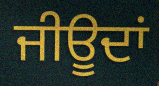
ਜੀਊਦਾਂ